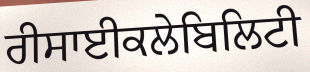
ਰੀਸਾਈਕਲੇਬਿਲਿਟੀ